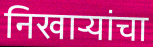
निखार्‍यांचा